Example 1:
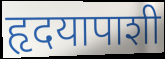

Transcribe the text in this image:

हृदयापाशी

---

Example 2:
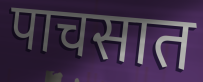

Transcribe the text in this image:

पाचसात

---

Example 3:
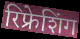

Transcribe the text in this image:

रिफ्रेशिंग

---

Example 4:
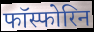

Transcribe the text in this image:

फॉस्फोरिन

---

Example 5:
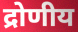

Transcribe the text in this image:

द्रोणीय